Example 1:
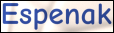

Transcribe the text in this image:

Espenak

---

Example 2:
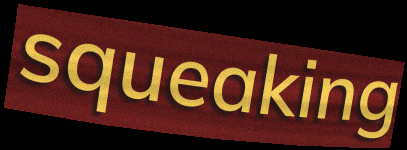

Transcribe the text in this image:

squeaking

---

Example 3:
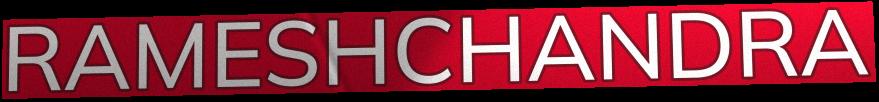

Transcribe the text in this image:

RAMESHCHANDRA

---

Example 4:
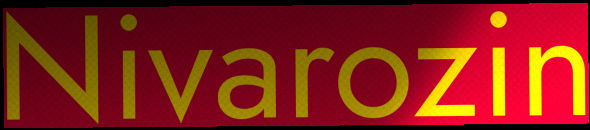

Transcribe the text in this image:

Nivarozin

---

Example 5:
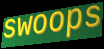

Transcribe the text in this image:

swoops